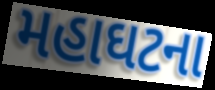
મહાઘટના